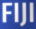
FIJI